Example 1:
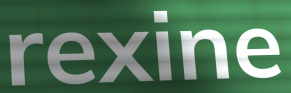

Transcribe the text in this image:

rexine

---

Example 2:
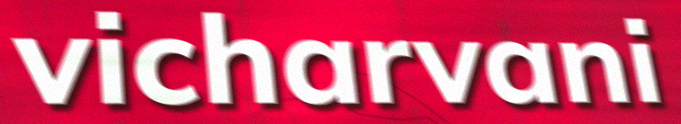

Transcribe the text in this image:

vicharvani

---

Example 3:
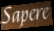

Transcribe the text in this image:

Sapere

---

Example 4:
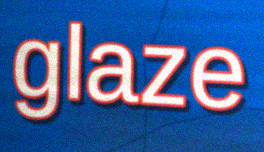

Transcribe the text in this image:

glaze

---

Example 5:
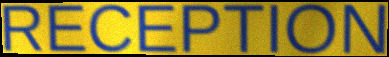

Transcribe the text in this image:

RECEPTION